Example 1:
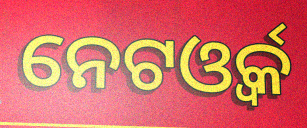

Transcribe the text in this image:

ନେଟଓ୍ବର୍କ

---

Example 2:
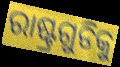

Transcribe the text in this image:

ରାଷ୍ଟ୍ରଗୁଡିକୁ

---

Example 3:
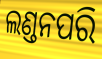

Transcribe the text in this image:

ଲଣ୍ଡନପରି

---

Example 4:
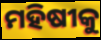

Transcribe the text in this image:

ମହିଷୀକୁ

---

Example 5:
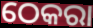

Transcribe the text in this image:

ଠେକରା